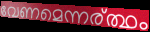
വേണമെന്നര്ത്ഥം